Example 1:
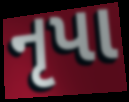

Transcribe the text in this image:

નૃપા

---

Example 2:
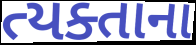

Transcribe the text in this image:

ત્યક્તાના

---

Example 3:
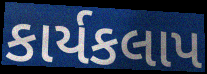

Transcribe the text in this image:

કાર્યકલાપ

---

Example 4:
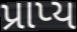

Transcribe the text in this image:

પ્રાપ્ય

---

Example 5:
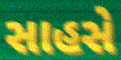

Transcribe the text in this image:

સાહસે